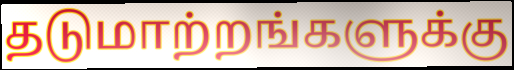
தடுமாற்றங்களுக்கு